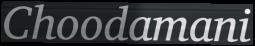
Choodamani